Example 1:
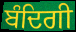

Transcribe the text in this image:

ਬੰਦਿਗੀ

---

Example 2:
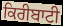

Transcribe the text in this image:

ਕਿਰੀਬਾਟੀ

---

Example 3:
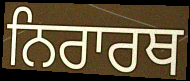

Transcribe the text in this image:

ਨਿਰਾਰਥ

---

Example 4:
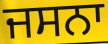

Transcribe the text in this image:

ਜਸਨਾ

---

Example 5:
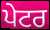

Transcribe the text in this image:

ਪੇਟਰ